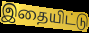
இதையிட்டு